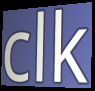
clk